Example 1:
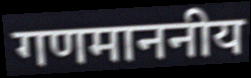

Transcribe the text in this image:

गणमाननीय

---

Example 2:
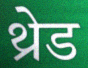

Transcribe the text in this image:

थ्रेड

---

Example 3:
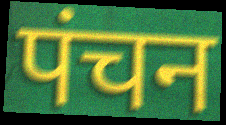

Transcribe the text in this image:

पंचन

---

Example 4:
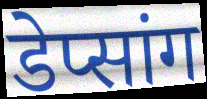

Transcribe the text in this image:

डेप्सांग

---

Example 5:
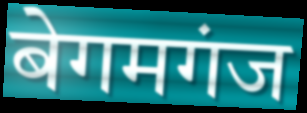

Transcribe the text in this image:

बेगमगंज